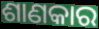
ଶାଣକାର